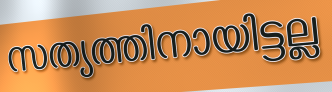
സത്യത്തിനായിട്ടല്ല